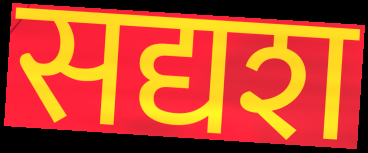
सद्यश